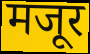
मजूर